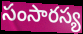
సంసారస్య